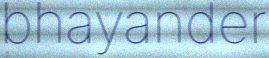
bhayander